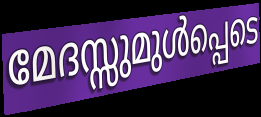
മേദസ്സുമുൾപ്പെടെ